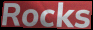
Rocks